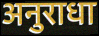
अनुराधा